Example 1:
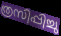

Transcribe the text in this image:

ത്രസിപ്പിച്ചു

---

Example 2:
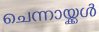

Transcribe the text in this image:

ചെന്നായ്ക്കൾ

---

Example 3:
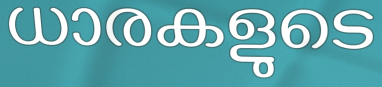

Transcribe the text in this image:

ധാരകളുടെ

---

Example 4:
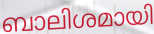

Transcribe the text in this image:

ബാലിശമായി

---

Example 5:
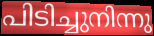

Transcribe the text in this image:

പിടിച്ചുനിന്നു